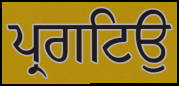
ਪ੍ਰਗਟਿਉ